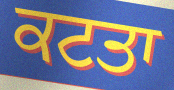
ਕਟਤਾ